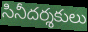
సినీదర్శకులు